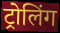
ट्रोलिंग